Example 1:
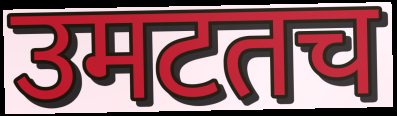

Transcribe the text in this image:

उमटतच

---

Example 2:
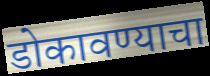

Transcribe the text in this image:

डोकावण्याचा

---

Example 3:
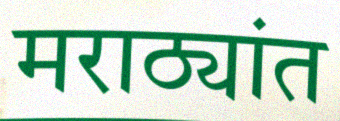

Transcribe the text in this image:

मराठ्यांत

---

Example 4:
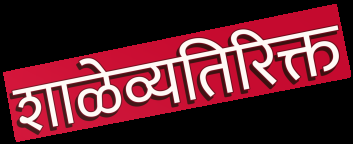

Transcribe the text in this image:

शाळेव्यतिरिक्त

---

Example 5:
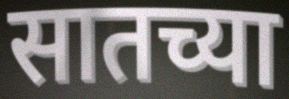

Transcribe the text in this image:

सातच्या